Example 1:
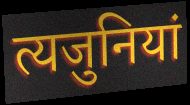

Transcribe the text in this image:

त्यजुनियां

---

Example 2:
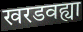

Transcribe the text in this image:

खरडवह्या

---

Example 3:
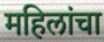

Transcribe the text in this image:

महिलांचा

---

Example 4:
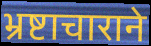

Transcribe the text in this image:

भ्रष्टाचाराने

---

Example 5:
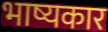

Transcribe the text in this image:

भाष्यकार